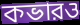
কভারও